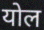
योल